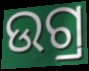
ଉଗ୍ର